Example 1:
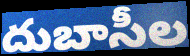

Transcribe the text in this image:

దుబాసీల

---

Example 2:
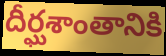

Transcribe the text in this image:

దీర్ఘశాంతానికి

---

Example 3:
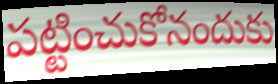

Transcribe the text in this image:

పట్టించుకోనందుకు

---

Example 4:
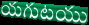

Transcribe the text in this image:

యగుటయు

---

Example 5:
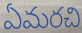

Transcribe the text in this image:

ఏమరచి